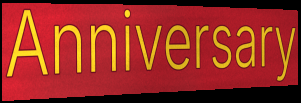
Anniversary